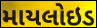
માયલોઇડ